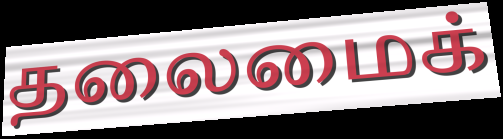
தலைமைக்